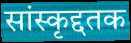
सांस्कृद्दतक